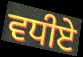
ਵਧੀਏ